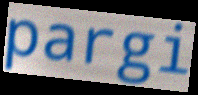
pargi